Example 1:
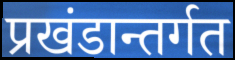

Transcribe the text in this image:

प्रखंडान्तर्गत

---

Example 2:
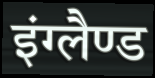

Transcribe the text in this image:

इंग्लैण्ड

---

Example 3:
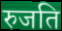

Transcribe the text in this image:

रुजति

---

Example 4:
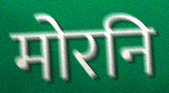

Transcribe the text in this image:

मोरनि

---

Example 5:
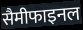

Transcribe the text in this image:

सैमीफाइनल